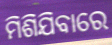
ମିଶିଯିବାରେ